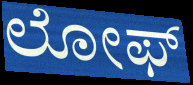
ಲೋಫ್